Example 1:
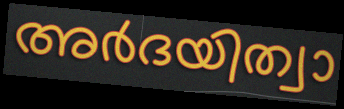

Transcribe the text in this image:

അർദയിത്വാ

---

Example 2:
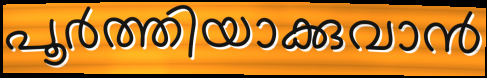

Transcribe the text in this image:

പൂർത്തിയാക്കുവാൻ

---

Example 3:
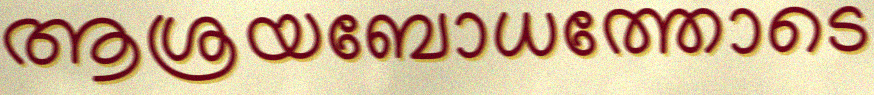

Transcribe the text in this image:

ആശ്രയബോധത്തോടെ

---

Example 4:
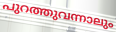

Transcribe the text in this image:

പുറത്തുവന്നാലും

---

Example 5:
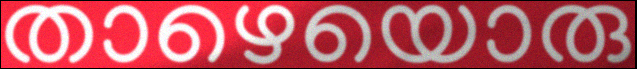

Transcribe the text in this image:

താഴെയൊരു